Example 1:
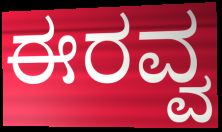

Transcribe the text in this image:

ಈರವ್ವ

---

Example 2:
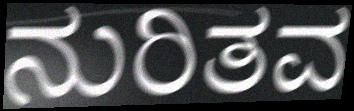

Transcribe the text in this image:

ನುರಿತವ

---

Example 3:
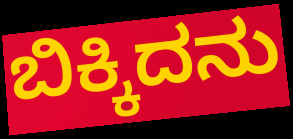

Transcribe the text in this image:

ಬಿಕ್ಕಿದನು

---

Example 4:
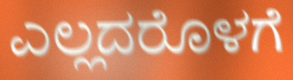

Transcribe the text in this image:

ಎಲ್ಲದರೊಳಗೆ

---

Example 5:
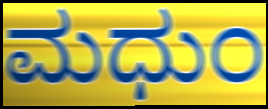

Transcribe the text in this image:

ಮಧುಂ